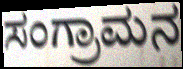
ಸಂಗ್ರಾಮನ